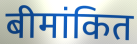
बीमांकित